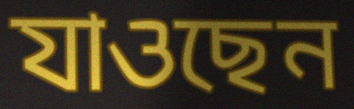
যাওছেন